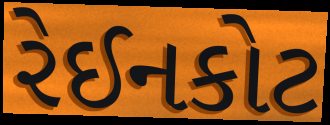
રેઈનકોટ